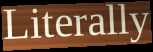
Literally